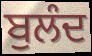
ਬੁਲੰਦ